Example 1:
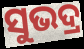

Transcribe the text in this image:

ସୁଭଦ୍ର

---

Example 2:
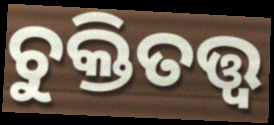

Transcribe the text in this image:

ଚୁକ୍ତିତତ୍ତ୍ଵ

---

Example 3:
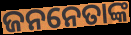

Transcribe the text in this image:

ଜନନେତାଙ୍କ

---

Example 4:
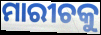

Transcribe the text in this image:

ମାରୀଚକୁ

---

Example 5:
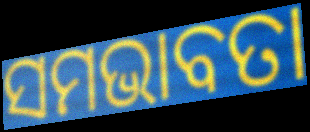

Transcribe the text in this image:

ସମଭାବତା